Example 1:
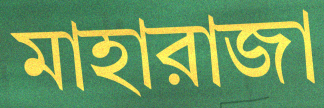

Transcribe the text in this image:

মাহারাজা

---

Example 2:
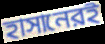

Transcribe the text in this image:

হাসানেরই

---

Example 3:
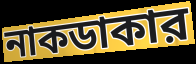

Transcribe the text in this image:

নাকডাকার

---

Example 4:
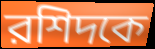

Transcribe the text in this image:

রশিদকে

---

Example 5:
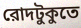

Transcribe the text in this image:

রোদটুকুতে